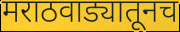
मराठवाड्यातूनच